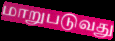
மாறுபடுவது